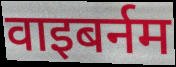
वाइबर्नम